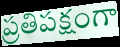
ప్రతిపక్షంగా